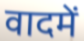
वादमें